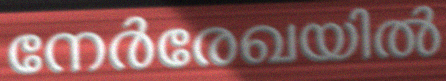
നേർരേഖയിൽ